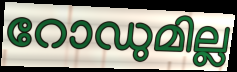
റോഡുമില്ല